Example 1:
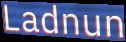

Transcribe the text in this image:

Ladnun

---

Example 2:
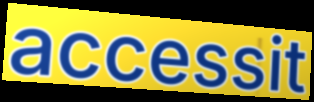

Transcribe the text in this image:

accessit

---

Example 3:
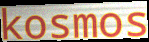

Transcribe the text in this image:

kosmos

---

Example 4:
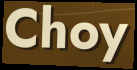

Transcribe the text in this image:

Choy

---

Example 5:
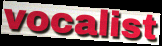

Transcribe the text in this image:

vocalist